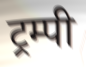
ट्रम्पी